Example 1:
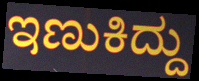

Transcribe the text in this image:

ಇಣುಕಿದ್ದು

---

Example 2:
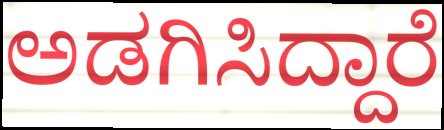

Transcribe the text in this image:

ಅಡಗಿಸಿದ್ದಾರೆ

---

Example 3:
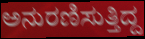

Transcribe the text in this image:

ಅನುರಣಿಸುತ್ತಿದ್ದ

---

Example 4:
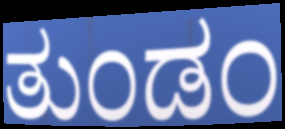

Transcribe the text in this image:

ತುಂಡಂ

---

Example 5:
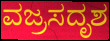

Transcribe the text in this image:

ವಜ್ರಸದೃಶ